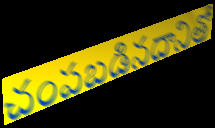
చంపబడినదానితో